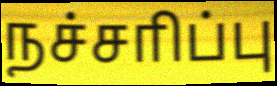
நச்சரிப்பு